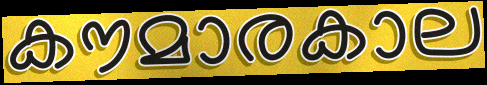
കൗമാരകാല